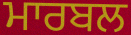
ਮਾਰਬਲ